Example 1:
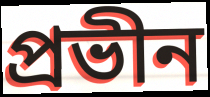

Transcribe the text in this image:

প্রভীন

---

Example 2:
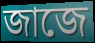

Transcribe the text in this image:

জাজে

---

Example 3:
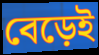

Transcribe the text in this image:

বেড়েই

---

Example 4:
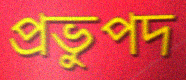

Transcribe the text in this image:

প্রভুপদ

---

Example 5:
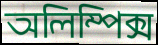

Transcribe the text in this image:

অলিম্পিক্স